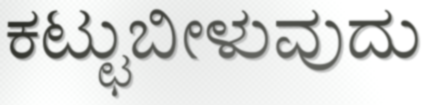
ಕಟ್ಟುಬೀಳುವುದು